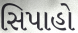
સિપાહો